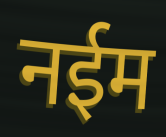
नईम